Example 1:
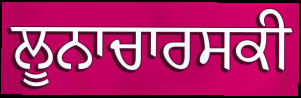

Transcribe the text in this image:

ਲੂਨਾਚਾਰਸਕੀ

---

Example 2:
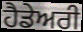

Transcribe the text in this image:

ਹੈਡੇਅਰੀ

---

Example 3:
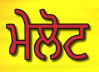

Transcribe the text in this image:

ਮੇਲੋਟ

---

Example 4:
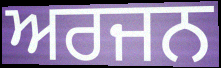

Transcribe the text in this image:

ਅਰਜਨ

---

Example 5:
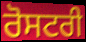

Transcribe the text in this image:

ਰੋਸਟਰੀ